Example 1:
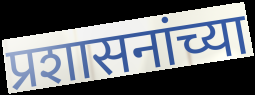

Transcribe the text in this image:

प्रशासनांच्या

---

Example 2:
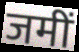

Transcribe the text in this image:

जमीं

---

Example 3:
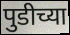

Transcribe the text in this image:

पुडीच्या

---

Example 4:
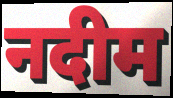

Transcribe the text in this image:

नदीम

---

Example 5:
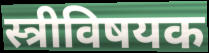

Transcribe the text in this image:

स्त्रीविषयक